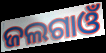
ଜଲଗାଓଁ